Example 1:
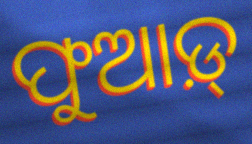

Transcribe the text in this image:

ଫୁଆଡ଼୍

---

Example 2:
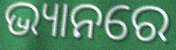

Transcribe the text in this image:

ଭ୍ୟାନରେ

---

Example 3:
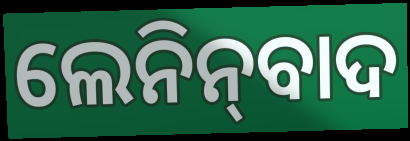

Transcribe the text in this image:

ଲେନିନ୍‌ବାଦ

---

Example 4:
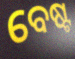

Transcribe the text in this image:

ବେଷ୍ଟ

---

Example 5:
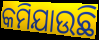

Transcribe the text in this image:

କମିଯାଉଛି